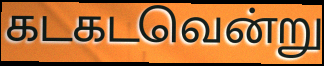
கடகடவென்று